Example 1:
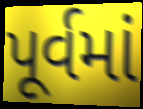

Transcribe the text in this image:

પૂર્વમાં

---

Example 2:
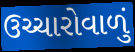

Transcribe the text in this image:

ઉચ્ચારોવાળું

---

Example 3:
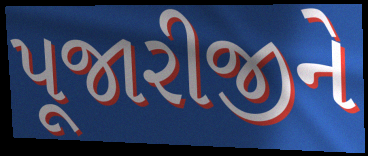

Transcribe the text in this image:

પૂજારીજીને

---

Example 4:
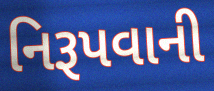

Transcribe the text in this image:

નિરૂપવાની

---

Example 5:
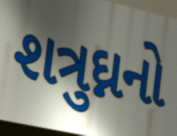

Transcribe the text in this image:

શત્રુઘ્નનો